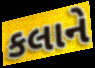
કલાને